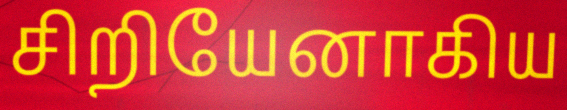
சிறியேனாகிய